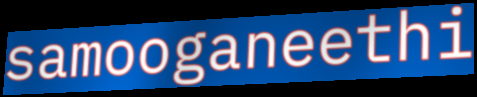
samooganeethi